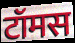
टॉमस